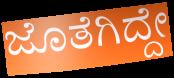
ಜೊತೆಗಿದ್ದೇ